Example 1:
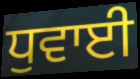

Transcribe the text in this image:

ਧੁਵਾਈ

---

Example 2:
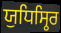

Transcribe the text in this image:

ਯੁਧਿਸ੍ਠਿਰ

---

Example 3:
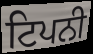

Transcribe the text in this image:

ਟਿਪਨੀ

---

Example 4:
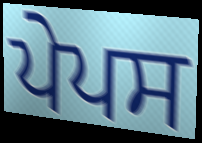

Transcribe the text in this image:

ਪੇਪਸ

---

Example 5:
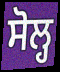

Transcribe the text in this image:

ਸੋਲ੍ਹ